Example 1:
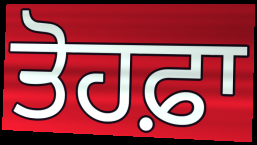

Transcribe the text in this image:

ਤੋਹਫ਼ਾ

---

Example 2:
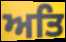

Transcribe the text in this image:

ਅਤਿ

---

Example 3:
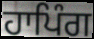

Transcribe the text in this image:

ਹਾਪਿੰਗ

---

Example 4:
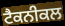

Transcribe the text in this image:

ਟੈਕਨੀਕਲ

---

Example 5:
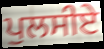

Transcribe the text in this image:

ਪੁਲਸੀਏ